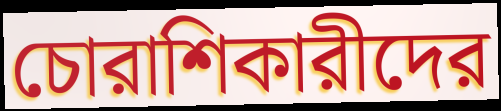
চোরাশিকারীদের